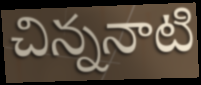
చిన్ననాటి